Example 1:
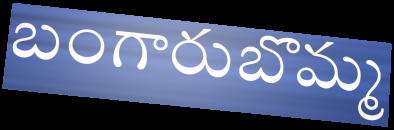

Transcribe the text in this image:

బంగారుబొమ్మ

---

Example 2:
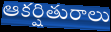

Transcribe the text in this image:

ఆకర్షితురాలు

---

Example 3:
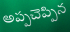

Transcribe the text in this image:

అప్పచెప్పిన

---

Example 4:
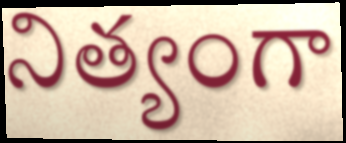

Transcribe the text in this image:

నిత్యంగా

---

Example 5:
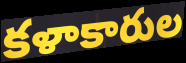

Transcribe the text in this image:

కళాకారుల